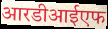
आरडीआईएफ